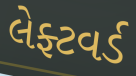
લેફ્ટવર્ડ